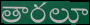
తారలూ